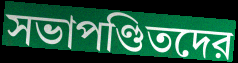
সভাপণ্ডিতদের